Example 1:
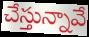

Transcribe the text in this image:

చేస్తున్నావే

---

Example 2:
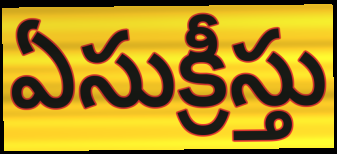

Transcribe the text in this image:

ఏసుక్రీస్తు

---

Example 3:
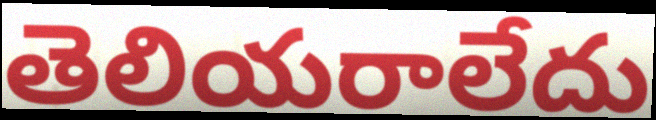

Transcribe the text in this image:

తెలియరాలేదు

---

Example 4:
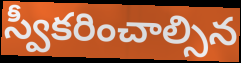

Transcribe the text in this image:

స్వీకరించాల్సిన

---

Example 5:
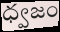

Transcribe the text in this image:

ధ్వజం